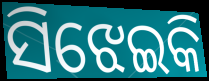
ସିଝେଇକି